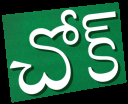
చోక్